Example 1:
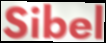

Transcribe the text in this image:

Sibel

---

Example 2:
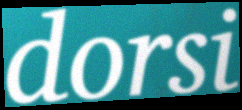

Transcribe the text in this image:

dorsi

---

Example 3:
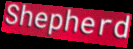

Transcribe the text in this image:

Shepherd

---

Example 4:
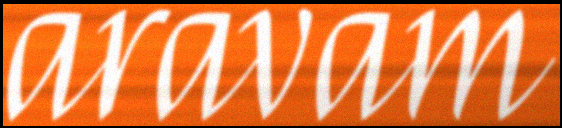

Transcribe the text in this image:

aravam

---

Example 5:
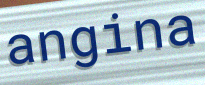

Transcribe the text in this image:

angina